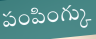
పంపింగ్కు